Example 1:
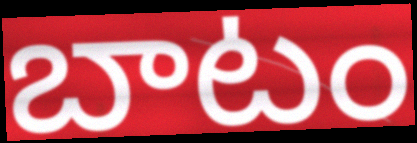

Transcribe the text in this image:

బాటం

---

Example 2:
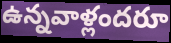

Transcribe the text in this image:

ఉన్నవాళ్లందరూ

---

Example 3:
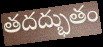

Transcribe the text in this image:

తదద్భుతం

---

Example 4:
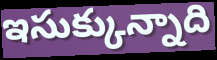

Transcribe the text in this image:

ఇసుక్కున్నాది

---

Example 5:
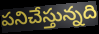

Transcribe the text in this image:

పనిచేస్తున్నది